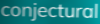
conjectural